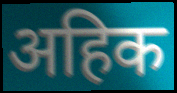
अहिक